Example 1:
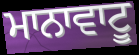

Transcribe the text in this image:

ਮਾਨਾਵਾਟੂ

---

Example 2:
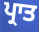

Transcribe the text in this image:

ਪ੍ਰਾਤ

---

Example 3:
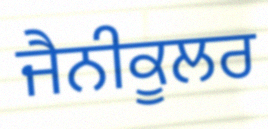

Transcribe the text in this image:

ਜੈਨੀਕੂਲਰ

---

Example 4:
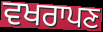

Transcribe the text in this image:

ਵਖਰਾਪਣ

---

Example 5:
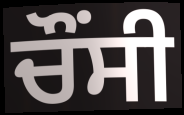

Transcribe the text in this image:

ਚੌਂਸੀ